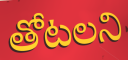
తోటలని